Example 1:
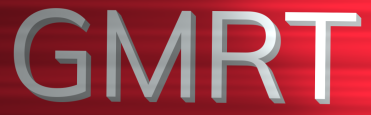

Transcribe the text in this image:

GMRT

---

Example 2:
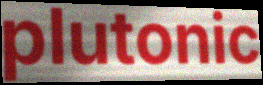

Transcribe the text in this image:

plutonic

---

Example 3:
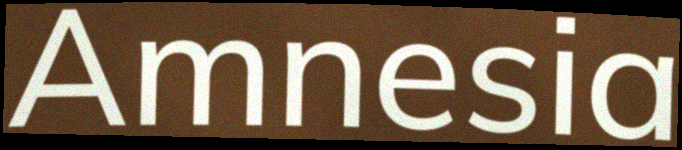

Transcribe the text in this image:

Amnesia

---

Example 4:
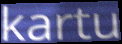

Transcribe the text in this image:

kartu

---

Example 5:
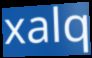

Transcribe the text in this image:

xalq